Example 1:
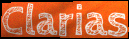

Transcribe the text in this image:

Clarias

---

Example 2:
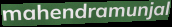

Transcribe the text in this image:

mahendramunjal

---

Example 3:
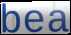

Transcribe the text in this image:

bea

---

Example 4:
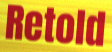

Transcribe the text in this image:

Retold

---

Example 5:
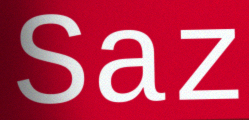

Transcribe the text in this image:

Saz